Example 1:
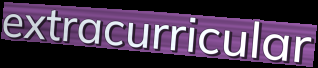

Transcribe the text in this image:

extracurricular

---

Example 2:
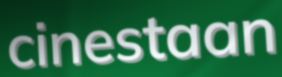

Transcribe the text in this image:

cinestaan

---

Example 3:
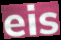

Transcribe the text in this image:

eis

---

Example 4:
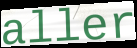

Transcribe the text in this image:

aller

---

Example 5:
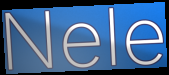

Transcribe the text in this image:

Nele